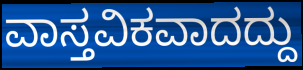
ವಾಸ್ತವಿಕವಾದದ್ದು